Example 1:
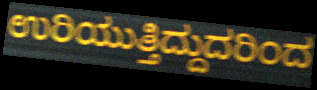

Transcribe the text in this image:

ಉರಿಯುತ್ತಿದ್ದುದರಿಂದ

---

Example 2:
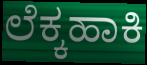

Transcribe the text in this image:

ಲೆಕ್ಕಹಾಕಿ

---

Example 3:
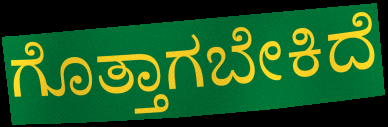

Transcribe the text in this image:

ಗೊತ್ತಾಗಬೇಕಿದೆ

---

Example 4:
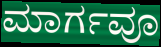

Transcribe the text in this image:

ಮಾರ್ಗವೂ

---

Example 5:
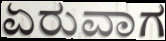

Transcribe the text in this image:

ಏರುವಾಗ